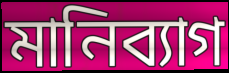
মানিব্যাগ